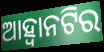
ଆହ୍ଵାନଟିର